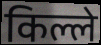
किल्ले